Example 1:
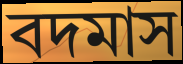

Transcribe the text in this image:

বদমাস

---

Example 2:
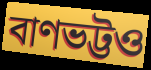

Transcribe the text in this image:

বাণভট্টও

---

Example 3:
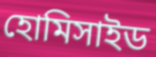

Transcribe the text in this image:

হোমিসাইড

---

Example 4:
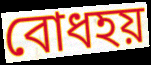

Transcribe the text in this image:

বোধহয়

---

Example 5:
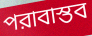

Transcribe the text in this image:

পরাবাস্তব